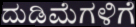
ದುಡಿಮೆಗಳಿಗೆ